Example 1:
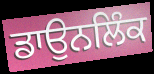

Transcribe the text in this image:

ਡਾਉਨਲਿੰਕ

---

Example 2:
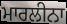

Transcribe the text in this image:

ਮਾਰਲੀਨਾ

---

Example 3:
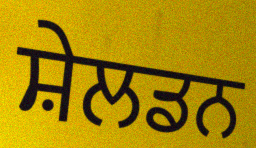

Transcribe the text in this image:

ਸ਼ੇਲਡਨ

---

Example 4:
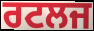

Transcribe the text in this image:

ਰਟਲਜ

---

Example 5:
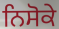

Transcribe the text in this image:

ਨਿਸੋਕੇ